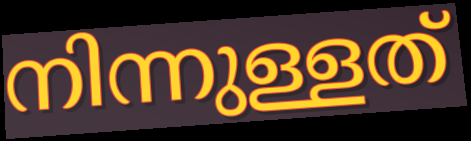
നിന്നുള്ളത്